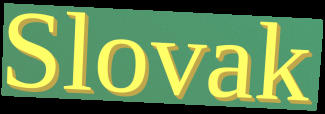
Slovak